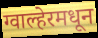
ग्वाल्हेरमधून